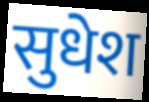
सुधेश